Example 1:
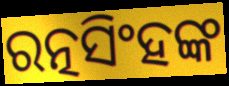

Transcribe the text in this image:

ରତ୍ନସିଂହଙ୍କ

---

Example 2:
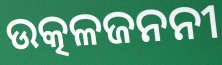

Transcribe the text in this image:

ଉତ୍କଳଜନନୀ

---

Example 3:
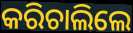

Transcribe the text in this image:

କରିଚାଲିଲେ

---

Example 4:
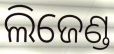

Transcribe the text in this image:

ଲିଜେଣ୍ଡ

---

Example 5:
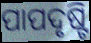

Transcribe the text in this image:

ପାପଦୃଷ୍ଟି